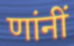
णांनीं